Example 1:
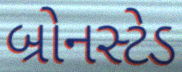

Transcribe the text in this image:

બ્રોનસ્ટેડ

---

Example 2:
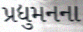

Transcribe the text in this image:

પ્રદ્યુમનના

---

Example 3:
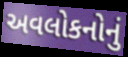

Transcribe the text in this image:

અવલોકનોનું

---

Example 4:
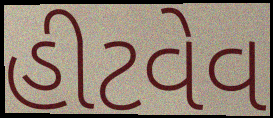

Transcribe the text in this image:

હીટવેવ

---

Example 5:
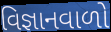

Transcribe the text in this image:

વિજ્ઞાનવાળો